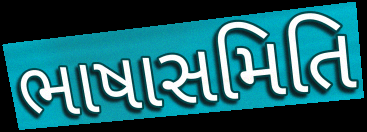
ભાષાસમિતિ